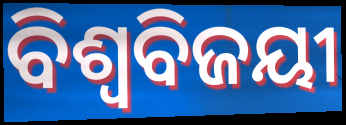
ବିଶ୍ଵବିଜୟୀ